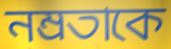
নম্রতাকে